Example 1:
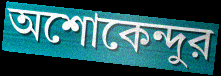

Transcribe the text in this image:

অশোকেন্দুর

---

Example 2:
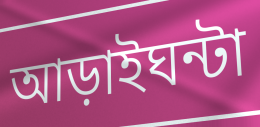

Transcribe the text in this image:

আড়াইঘন্টা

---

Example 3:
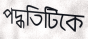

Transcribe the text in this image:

পদ্ধতিটিকে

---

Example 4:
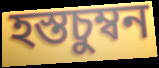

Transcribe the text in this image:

হস্তচুম্বন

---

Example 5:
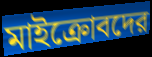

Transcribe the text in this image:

মাইক্রোবদের